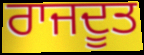
ਰਾਜਦੂਤ